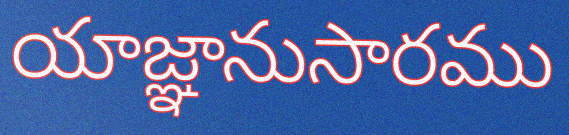
యాజ్ఞానుసారము